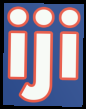
iji